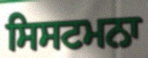
ਸਿਸਟਮਨਾ